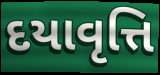
દયાવૃત્તિ